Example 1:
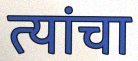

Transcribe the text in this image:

त्‍यांचा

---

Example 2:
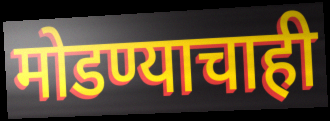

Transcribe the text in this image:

मोडण्याचाही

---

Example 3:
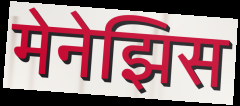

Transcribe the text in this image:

मेनेझिस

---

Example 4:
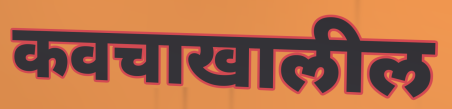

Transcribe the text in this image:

कवचाखालील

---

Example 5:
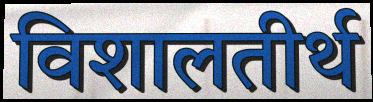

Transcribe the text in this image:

विशालतीर्थ